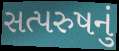
સત્પરુષનું